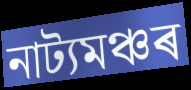
নাট্যমঞ্চৰ